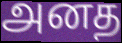
அனத